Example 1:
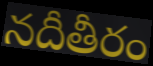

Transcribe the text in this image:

నదీతీరం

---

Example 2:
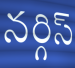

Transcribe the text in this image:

నర్గిస్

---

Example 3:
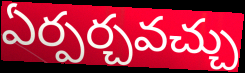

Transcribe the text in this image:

ఏర్పర్చవచ్చు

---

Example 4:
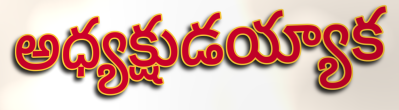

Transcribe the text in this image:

అధ్యక్షుడయ్యాక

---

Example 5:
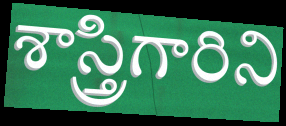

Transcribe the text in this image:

శాస్త్రిగారిని